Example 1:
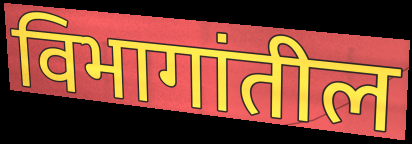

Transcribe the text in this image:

विभागांतील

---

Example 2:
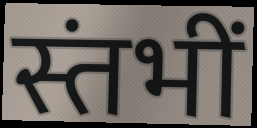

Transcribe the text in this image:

स्तंभीं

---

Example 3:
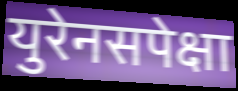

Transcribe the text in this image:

युरेनसपेक्षा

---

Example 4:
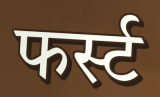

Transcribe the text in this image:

फर्स्ट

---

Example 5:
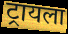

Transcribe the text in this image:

ट्रायला